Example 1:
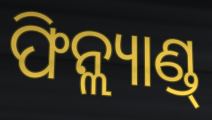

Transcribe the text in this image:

ଫିନ୍ଲ୍ୟାଣ୍ଡ୍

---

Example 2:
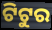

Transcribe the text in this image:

ଟିଟୁର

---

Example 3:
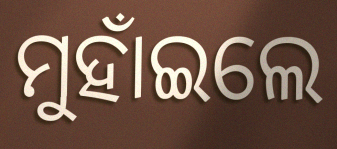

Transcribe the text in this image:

ମୁହାଁଇଲେ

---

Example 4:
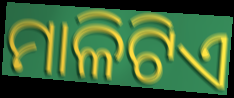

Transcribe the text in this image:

ମାଳିଟିଏ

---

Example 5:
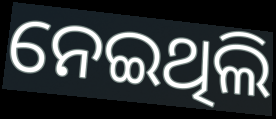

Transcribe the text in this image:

ନେଇଥିଲି